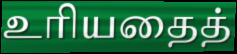
உரியதைத்